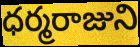
ధర్మరాజుని